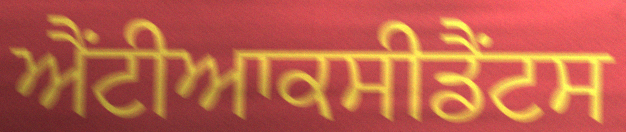
ਐਂਟੀਆਕਸੀਡੈਂਟਸ